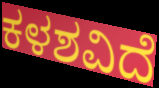
ಕಳಶವಿದೆ